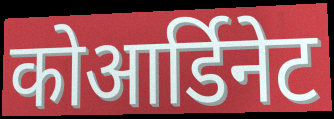
कोआर्डिनेट